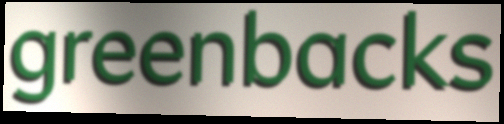
greenbacks